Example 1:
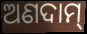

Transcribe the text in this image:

ଅଣଦାମ୍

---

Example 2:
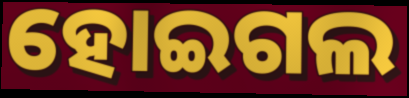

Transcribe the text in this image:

ହୋଇଗଲ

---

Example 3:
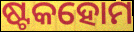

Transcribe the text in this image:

ଷ୍ଟକହୋମ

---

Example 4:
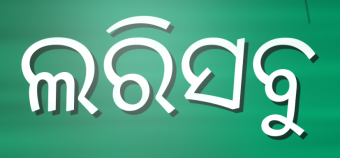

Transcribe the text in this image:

ଲରିସବୁ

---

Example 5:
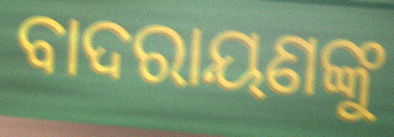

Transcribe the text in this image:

ବାଦରାୟଣଙ୍କୁ